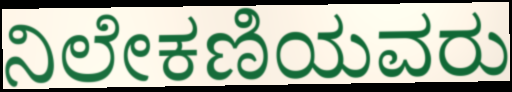
ನಿಲೇಕಣಿಯವರು